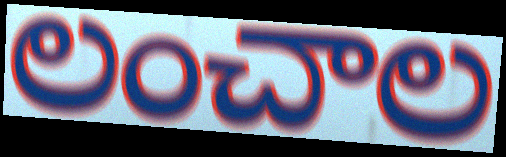
లంచాల